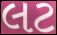
લટ